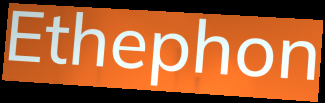
Ethephon